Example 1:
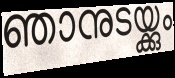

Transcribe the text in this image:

ഞാനുടയ്ക്കും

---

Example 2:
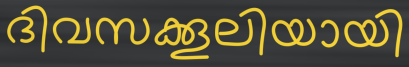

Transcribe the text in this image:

ദിവസക്കൂലിയായി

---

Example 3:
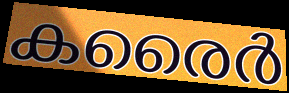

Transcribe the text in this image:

കരൈർ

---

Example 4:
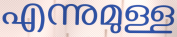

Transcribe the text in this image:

എന്നുമുള്ള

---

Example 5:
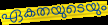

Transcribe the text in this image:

ഏകതയുടെയും